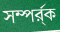
সম্পর্র্ক